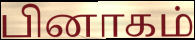
பினாகம்